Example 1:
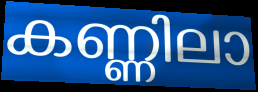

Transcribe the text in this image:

കണ്ണിലാ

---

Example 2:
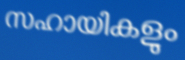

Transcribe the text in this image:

സഹായികളും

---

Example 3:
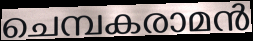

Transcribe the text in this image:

ചെമ്പകരാമൻ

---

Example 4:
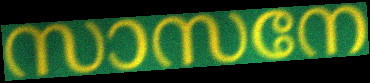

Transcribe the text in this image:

സാസനേ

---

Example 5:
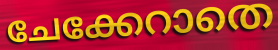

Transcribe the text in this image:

ചേക്കേറാതെ